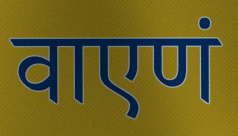
वाएणं